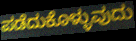
ಪಡೆದುಕೊಳ್ಳುವುದು